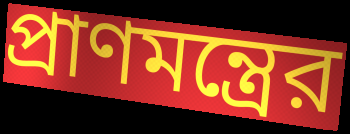
প্রাণমন্ত্রের